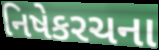
નિષેકરચના